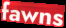
fawns